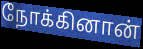
நோக்கினான்